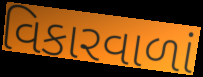
વિકારવાળાં